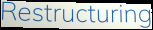
Restructuring